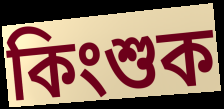
কিংশুক